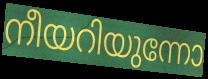
നീയറിയുന്നോ